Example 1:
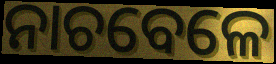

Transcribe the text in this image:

ନାଚବେଳେ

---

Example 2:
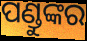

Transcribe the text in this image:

ପଣ୍ଡୁଙ୍କର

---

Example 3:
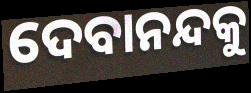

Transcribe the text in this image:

ଦେବାନନ୍ଦକୁ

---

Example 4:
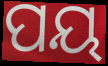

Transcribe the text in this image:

ପୟ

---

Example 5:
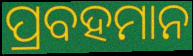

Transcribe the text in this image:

ପ୍ରବହମାନ